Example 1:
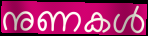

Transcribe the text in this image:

നുണകൾ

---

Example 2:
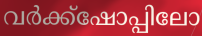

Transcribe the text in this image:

വർക്ക്ഷോപ്പിലോ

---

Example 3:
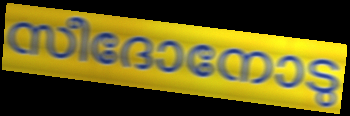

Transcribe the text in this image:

സീദോനോടു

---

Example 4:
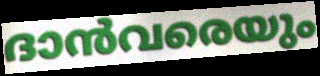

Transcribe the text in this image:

ദാൻവരെയും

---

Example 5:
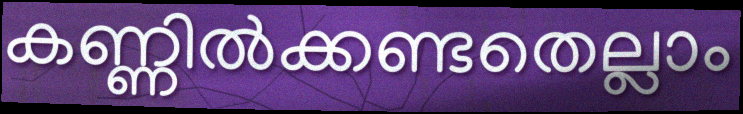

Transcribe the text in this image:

കണ്ണിൽക്കണ്ടതെല്ലാം